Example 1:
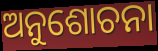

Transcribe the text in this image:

ଅନୁଶୋଚନା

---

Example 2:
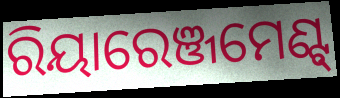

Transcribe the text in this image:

ରିୟାରେଞ୍ଜମେଣ୍ଟ୍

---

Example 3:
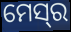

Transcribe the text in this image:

ମେସ୍‍ର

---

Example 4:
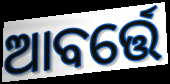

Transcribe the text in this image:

ଆବର୍ତ୍ତେ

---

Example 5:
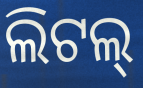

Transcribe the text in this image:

ଲିଟଲ୍